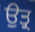
ਉਤ੍ਰ